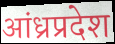
आंध्रप्रदेश